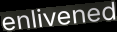
enlivened